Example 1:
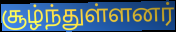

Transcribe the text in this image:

சூழ்ந்துள்ளனர்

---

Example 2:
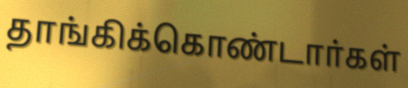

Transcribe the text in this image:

தாங்கிக்கொண்டார்கள்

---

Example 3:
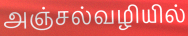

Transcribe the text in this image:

அஞ்சல்வழியில்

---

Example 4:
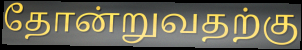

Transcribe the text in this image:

தோன்றுவதற்கு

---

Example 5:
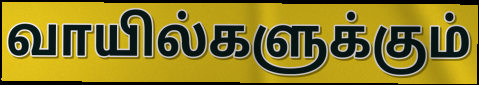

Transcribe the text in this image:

வாயில்களுக்கும்